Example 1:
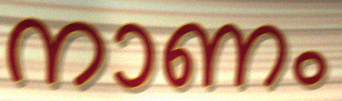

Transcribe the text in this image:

നാണം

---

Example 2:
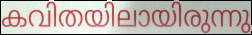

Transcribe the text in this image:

കവിതയിലായിരുന്നു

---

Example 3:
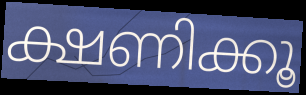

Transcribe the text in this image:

ക്ഷണിക്കൂ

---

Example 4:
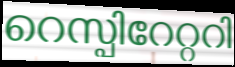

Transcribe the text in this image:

റെസ്പിറേറ്ററി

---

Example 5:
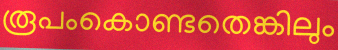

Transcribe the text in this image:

രൂപംകൊണ്ടതെങ്കിലും